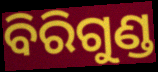
ବିରିଗୁଣ୍ଡ